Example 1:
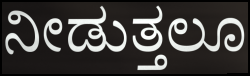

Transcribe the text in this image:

ನೀಡುತ್ತಲೂ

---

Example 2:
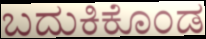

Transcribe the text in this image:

ಬದುಕಿಕೊಂಡ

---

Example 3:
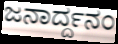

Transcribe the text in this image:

ಜನಾರ್ದ್ದನಂ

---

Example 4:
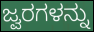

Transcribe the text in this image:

ಜ್ವರಗಳನ್ನು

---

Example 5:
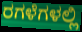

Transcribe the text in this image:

ರಗಳೆಗಳಲ್ಲಿ